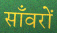
साँवरों